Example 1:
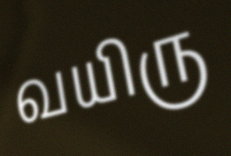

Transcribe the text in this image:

வயிரு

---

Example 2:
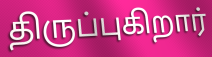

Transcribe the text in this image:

திருப்புகிறார்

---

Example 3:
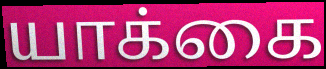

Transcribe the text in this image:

யாக்கை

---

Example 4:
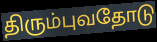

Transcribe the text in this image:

திரும்புவதோடு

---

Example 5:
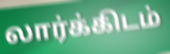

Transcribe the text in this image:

லார்க்கிடம்